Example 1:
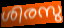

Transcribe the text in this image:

ശിരസു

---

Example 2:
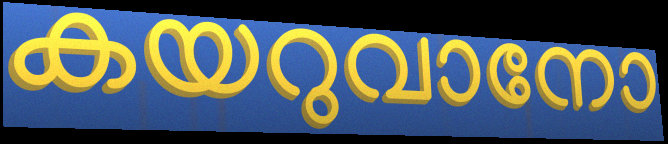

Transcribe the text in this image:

കയറുവാനോ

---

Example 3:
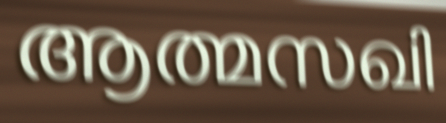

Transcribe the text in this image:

ആത്മസഖി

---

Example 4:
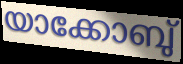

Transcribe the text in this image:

യാക്കോബു്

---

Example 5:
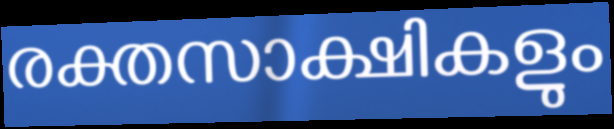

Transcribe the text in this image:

രക്തസാക്ഷികളും